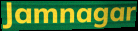
Jamnagar